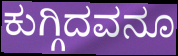
ಕುಗ್ಗಿದವನೂ